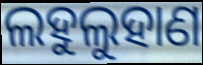
ଲହୁଲୁହାଣ